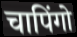
चापिंगो